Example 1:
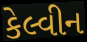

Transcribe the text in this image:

કેલ્વીન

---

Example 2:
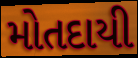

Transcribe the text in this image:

મોતદાયી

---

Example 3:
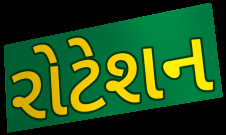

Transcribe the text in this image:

રોટેશન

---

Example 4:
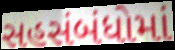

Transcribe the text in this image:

સહસંબંધોમાં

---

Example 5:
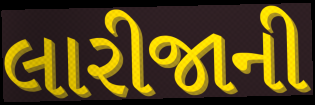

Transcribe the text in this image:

લારીજાની